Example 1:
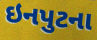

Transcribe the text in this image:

ઇનપુટના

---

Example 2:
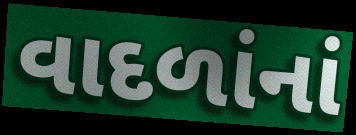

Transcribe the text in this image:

વાદળાંનાં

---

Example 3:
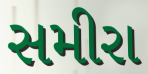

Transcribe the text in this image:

સમીરા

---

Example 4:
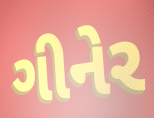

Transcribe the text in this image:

ગીનેર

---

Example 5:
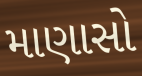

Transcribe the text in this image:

માણાસો